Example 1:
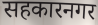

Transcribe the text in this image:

सहकारनगर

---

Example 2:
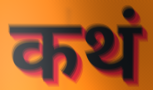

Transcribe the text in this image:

कथं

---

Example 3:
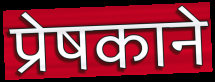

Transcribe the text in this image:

प्रेषकाने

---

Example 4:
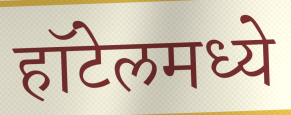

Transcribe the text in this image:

हॉटेलमध्ये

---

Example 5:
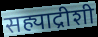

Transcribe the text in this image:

सह्याद्रीशी